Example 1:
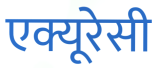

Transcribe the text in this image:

एक्यूरेसी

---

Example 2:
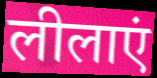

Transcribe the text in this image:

लीलाएं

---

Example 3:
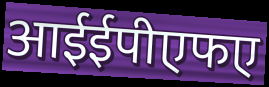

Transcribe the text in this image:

आईईपीएफए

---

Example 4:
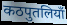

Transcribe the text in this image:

कठपुतलियाँ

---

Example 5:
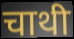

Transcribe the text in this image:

चाथी